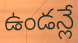
ఉండన్లే